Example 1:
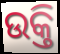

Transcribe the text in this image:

ଉକ୍ତି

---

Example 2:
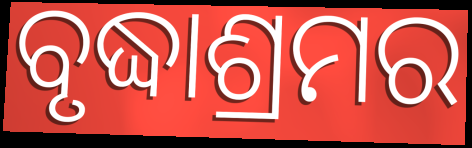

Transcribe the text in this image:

ବୃଦ୍ଧାଶ୍ରମର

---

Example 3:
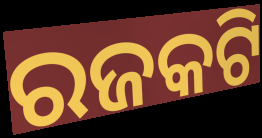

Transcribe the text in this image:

ରଜକଟି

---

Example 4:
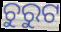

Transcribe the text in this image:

ଚୁରୁଟ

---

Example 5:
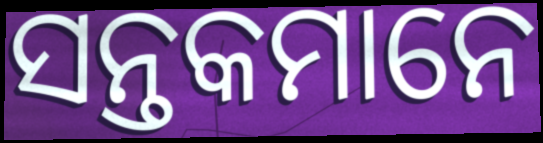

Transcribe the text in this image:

ସନ୍ତକମାନେ